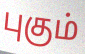
புகும்